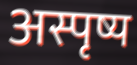
अस्पृष्य